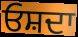
ਓਸ਼ਦਾ